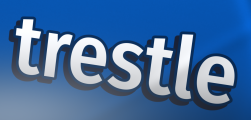
trestle